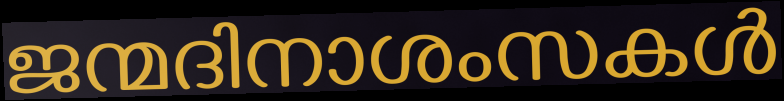
ജന്മദിനാശംസകൾ